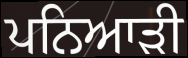
ਪਨਿਆੜੀ